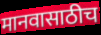
मानवासाठीच